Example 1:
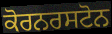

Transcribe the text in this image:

ਕੋਰਨਰਸਟੋਨ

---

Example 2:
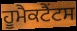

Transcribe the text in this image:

ਹੂਮੈਕਟੈਂਟਸ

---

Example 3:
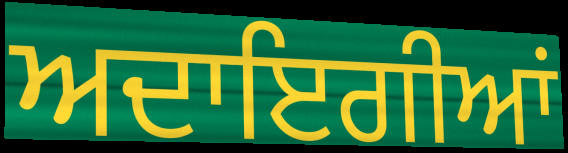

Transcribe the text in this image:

ਅਦਾਇਗੀਆਂ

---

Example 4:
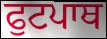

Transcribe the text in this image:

ਫੁਟਪਾਥ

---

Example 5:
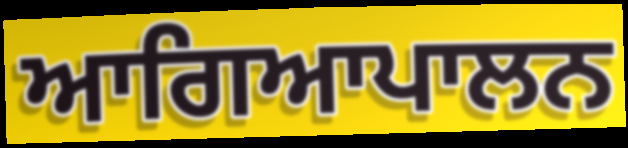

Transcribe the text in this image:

ਆਗਿਆਪਾਲਨ